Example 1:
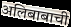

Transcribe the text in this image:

अलिबाबाची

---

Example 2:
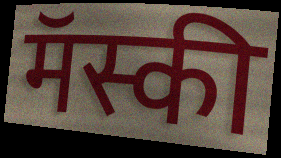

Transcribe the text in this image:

मॅस्की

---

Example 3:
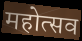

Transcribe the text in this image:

महोत्सव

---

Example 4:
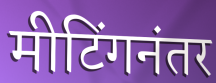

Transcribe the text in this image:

मीटिंगनंतर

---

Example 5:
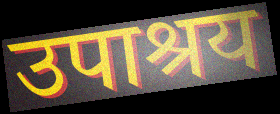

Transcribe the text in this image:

उपाश्रय